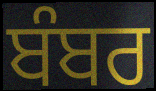
ਬੰਬਰ